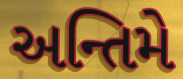
અન્તિમે